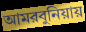
আমরবুনিয়ায়